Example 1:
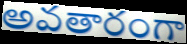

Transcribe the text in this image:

అవతారంగా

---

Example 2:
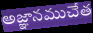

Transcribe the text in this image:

అజ్ఞానముచేత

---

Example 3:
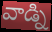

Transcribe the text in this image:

వాడ్ని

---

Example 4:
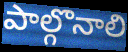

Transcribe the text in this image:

పాల్గొనాలి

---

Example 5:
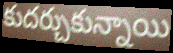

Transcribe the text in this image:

కుదర్చుకున్నాయి